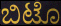
ಬಿಟೊ